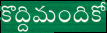
కొద్దిమందికో